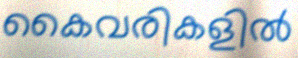
കൈവരികളിൽ